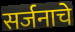
सर्जनाचे